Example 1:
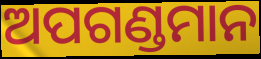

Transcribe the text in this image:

ଅପଗଣ୍ଡମାନ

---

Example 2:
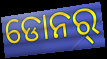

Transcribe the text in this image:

ଡୋନର୍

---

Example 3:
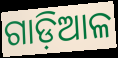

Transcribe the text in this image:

ଗାଡ଼ିଆଳ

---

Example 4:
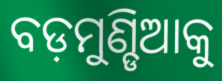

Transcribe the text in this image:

ବଡ଼ମୁଣ୍ଡିଆକୁ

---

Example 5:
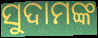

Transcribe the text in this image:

ସୁଦାମଙ୍କ